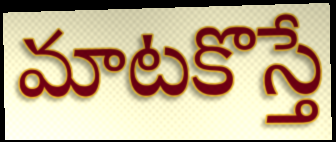
మాటకొస్తే